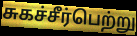
சுகச்சீர்பெற்று